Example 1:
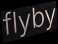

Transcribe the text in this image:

flyby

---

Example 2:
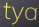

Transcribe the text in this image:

tya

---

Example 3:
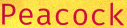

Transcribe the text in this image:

Peacock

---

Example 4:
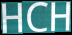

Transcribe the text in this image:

HCH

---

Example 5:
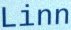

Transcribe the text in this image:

Linn